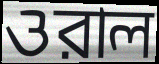
ওরাল